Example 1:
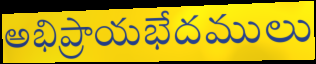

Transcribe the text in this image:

అభిప్రాయభేదములు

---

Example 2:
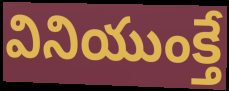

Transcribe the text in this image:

వినియుంక్తే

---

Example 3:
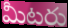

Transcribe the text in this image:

మీటరు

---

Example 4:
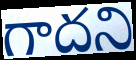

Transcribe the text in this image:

గాదని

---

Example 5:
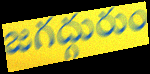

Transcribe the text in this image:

జగద్గురుం